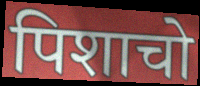
पिशाचो